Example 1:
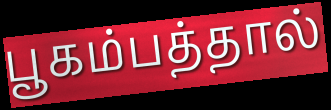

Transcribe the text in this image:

பூகம்பத்தால்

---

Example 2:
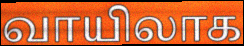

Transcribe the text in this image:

வாயிலாக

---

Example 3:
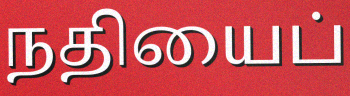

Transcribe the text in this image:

நதியைப்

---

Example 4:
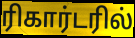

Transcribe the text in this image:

ரிகார்டரில்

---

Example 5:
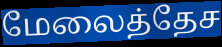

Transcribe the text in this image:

மேலைத்தேச